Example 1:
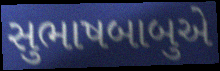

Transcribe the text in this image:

સુભાષબાબુએ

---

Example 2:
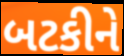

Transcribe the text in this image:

બટકીને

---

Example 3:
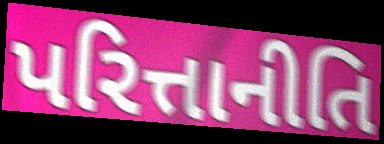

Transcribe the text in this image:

પરિત્તાનીતિ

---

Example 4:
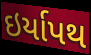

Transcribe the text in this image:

ઇર્યાપથ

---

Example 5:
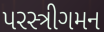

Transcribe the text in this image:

પરસ્ત્રીગમન